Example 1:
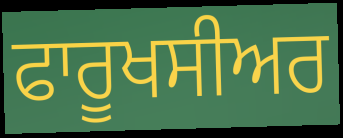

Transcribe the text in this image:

ਫਾਰੂਖਸੀਅਰ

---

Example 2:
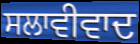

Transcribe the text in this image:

ਸਲਾਵੀਵਾਦ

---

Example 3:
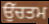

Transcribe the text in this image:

ਉੱਚਤਮ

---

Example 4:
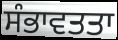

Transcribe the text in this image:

ਸੰਭਾਵਤਤਾ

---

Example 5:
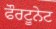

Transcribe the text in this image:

ਫੌਰਟੂਨੇਟ